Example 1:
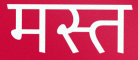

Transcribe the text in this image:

मस्‍त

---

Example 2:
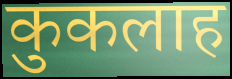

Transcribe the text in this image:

कुकलाह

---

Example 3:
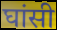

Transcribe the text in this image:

घांसी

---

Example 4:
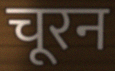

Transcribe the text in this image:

चूरन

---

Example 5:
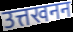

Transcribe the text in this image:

उत्तखनन